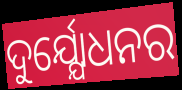
ଦୁର୍ଯ୍ଯୋଧନର